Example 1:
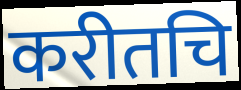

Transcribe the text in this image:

करीतचि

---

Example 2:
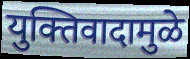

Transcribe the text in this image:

युक्तिवादामुळे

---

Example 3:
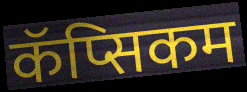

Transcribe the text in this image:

कॅप्सिकम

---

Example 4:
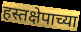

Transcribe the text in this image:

हस्तक्षेपाच्या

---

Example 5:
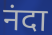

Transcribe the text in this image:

नंदा